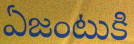
ఏజంటుకి